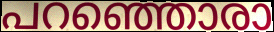
പറഞ്ഞൊരാ